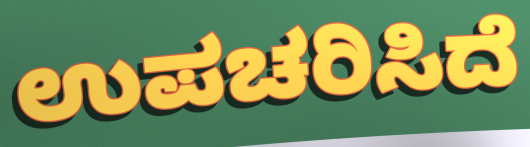
ಉಪಚರಿಸಿದೆ